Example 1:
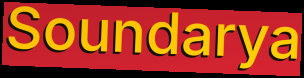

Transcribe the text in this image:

Soundarya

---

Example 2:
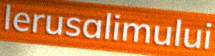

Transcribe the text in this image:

Ierusalimului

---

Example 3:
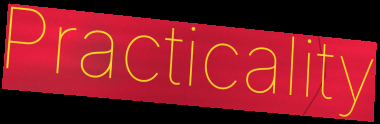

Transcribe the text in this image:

Practicality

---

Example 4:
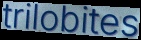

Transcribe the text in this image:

trilobites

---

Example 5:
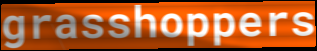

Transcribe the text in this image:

grasshoppers